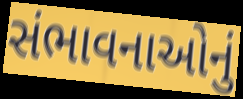
સંભાવનાઓનું